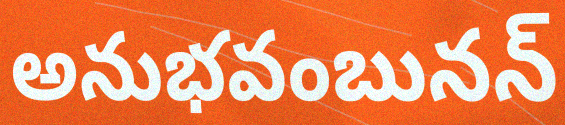
అనుభవంబునన్